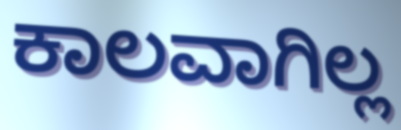
ಕಾಲವಾಗಿಲ್ಲ